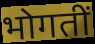
भोगतीं